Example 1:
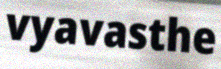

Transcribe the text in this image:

vyavasthe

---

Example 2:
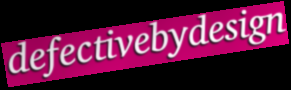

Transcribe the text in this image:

defectivebydesign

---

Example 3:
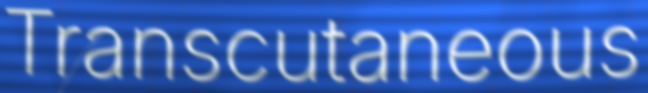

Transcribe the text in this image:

Transcutaneous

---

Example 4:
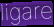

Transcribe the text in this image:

ligare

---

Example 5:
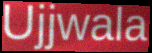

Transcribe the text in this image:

Ujjwala